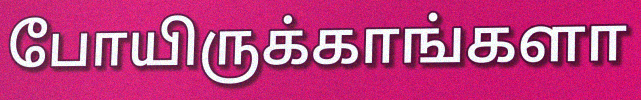
போயிருக்காங்களா